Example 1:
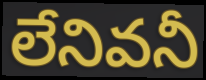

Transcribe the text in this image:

లేనివనీ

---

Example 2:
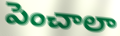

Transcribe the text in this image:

పెంచాలా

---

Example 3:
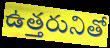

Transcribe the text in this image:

ఉత్తరునితో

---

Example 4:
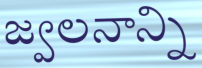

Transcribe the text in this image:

జ్వలనాన్ని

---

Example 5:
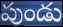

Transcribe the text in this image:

పుండు